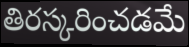
తిరస్కరించడమే